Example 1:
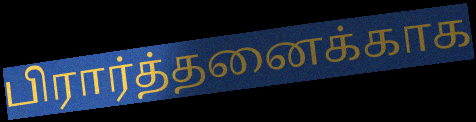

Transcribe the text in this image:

பிரார்த்தனைக்காக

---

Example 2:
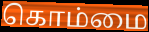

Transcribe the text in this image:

கொம்மை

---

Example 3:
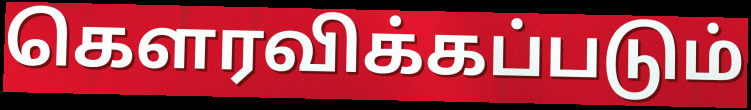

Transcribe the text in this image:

கௌரவிக்கப்படும்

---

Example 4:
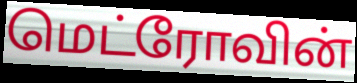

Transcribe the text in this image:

மெட்ரோவின்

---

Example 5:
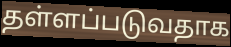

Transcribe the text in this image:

தள்ளப்படுவதாக